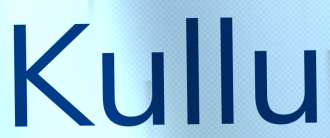
Kullu